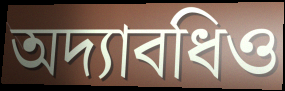
অদ্যাবধিও